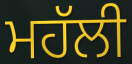
ਮਹੱਲੀ